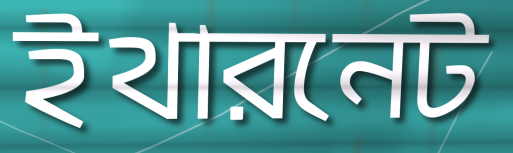
ইথারনেট